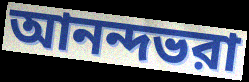
আনন্দভরা